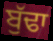
ਬੁੱਢਾ